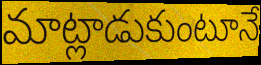
మాట్లాడుకుంటూనే